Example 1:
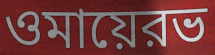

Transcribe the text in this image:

ওমায়েরভ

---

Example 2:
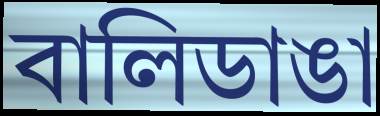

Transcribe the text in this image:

বালিডাঙা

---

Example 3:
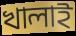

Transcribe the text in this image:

খালাই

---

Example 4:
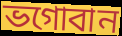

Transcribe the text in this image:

ভগোবান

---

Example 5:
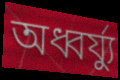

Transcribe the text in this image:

অধ্বর্য্যু